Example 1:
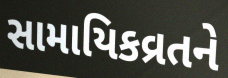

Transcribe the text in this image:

સામાયિકવ્રતને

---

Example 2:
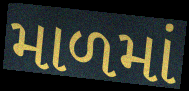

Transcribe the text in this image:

માળમાં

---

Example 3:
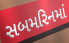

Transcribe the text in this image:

સબમરિનમાં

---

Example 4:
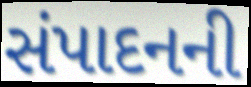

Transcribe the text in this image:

સંપાદનની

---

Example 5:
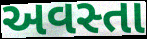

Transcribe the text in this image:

અવસ્તા